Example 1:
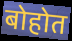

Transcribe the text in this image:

बोहोत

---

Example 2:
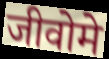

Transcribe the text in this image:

जीवोमे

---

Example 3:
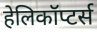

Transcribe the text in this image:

हेलिकॉप्टर्स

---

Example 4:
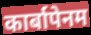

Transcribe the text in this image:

कार्बापेनम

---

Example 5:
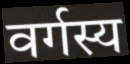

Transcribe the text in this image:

वर्गस्य